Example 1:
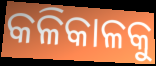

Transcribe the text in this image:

କଳିକାଳକୁ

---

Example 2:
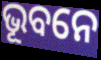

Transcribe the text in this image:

ଭୂବନେ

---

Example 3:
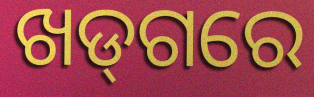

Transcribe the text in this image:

ଖଡ୍‌ଗରେ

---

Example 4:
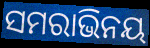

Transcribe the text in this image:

ସମରାଭିନୟ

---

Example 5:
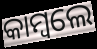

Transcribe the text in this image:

କାମ୍ବଲେ